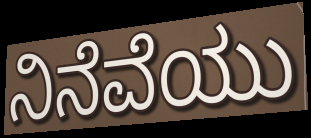
ನಿನೆವೆಯು